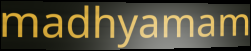
madhyamam